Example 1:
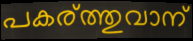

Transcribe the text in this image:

പകര്ത്തുവാന്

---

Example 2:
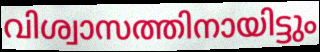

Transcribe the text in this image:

വിശ്വാസത്തിനായിട്ടും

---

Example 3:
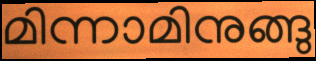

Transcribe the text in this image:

മിന്നാമിനുങ്ങു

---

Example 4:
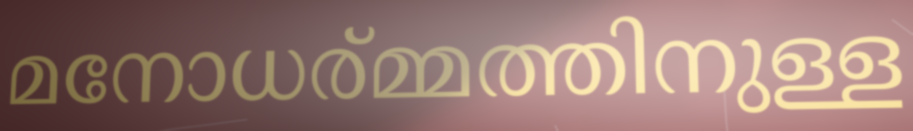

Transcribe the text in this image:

മനോധര്മ്മത്തിനുള്ള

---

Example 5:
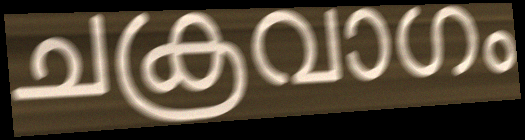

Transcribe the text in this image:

ചക്രവാഗം